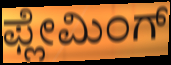
ಫ್ಲೇಮಿಂಗ್